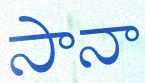
సానా